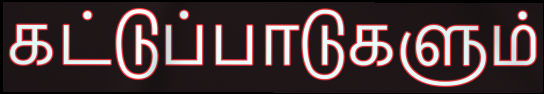
கட்டுப்பாடுகளும்